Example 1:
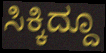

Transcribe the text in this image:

ಸಿಕ್ಕಿದ್ದೂ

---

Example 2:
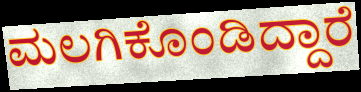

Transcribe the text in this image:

ಮಲಗಿಕೊಂಡಿದ್ದಾರೆ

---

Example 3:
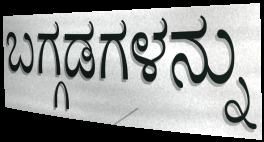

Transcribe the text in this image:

ಬಗ್ಗಡಗಳನ್ನು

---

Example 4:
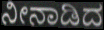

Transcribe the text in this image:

ನೀನಾಡಿದ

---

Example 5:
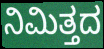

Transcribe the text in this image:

ನಿಮಿತ್ತದ